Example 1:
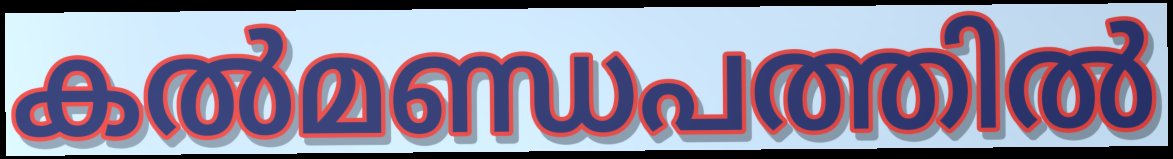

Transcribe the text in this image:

കൽമണ്ഡപത്തിൽ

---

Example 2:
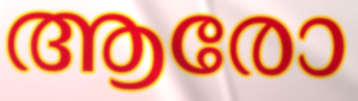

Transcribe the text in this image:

ആരോ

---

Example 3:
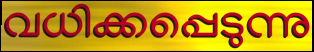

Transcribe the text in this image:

വധിക്കപ്പെടുന്നു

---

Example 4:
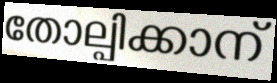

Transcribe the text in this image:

തോല്പിക്കാന്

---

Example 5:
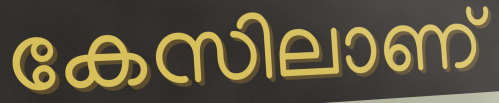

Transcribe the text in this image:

കേസിലാണ്